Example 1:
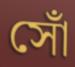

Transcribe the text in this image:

সোঁ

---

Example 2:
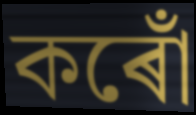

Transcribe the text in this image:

কৰোঁ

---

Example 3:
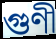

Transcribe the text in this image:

গুণী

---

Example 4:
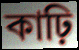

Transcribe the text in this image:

কাঢ়ি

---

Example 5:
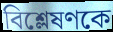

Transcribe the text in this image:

বিশ্লেষণকে